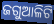
ଜଗୁଆଳିଟି